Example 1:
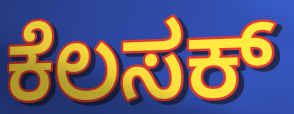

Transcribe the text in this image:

ಕೆಲಸಕ್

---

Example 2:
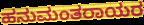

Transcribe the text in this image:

ಹನುಮಂತರಾಯರ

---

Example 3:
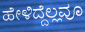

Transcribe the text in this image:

ಹೇಳಿದ್ದೆಲ್ಲವೂ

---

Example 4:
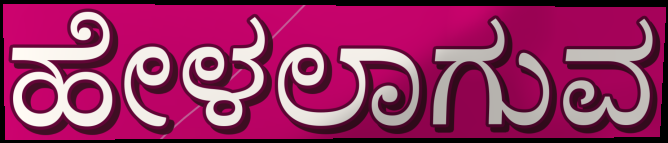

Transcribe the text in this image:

ಹೇಳಲಾಗುವ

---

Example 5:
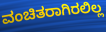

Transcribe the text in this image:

ವಂಚಿತರಾಗಿರಲಿಲ್ಲ